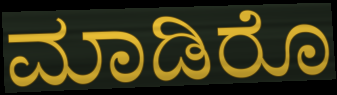
ಮಾಡಿರೊ